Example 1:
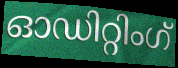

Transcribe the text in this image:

ഓഡിറ്റിംഗ്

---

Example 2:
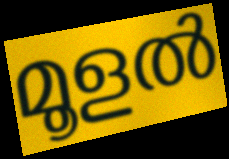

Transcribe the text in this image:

മൂളൽ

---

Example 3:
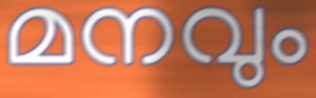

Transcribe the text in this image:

മനവും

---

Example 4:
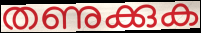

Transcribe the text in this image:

തണുക്കുക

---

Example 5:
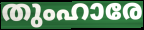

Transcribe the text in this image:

തുംഹാരേ